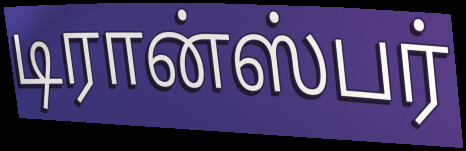
டிரான்ஸ்பர்